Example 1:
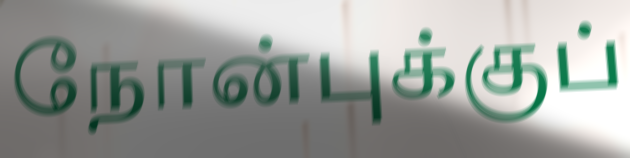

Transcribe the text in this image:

நோன்புக்குப்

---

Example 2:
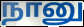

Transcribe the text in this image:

நானு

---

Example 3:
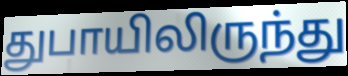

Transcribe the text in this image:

துபாயிலிருந்து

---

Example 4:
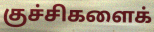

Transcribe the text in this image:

குச்சிகளைக்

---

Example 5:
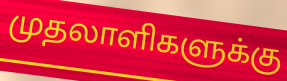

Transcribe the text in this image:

முதலாளிகளுக்கு